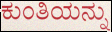
ಕುಂತಿಯನ್ನು